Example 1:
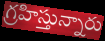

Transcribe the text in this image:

గ్రహిస్తున్నారు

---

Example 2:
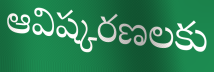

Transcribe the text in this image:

ఆవిష్కరణలకు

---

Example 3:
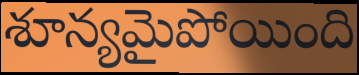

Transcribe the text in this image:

శూన్యమైపోయింది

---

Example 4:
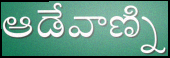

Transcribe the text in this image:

ఆడేవాణ్ని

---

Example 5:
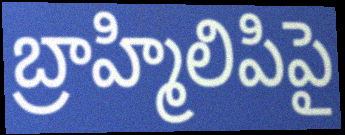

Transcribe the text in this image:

బ్రాహ్మిలిపిపై